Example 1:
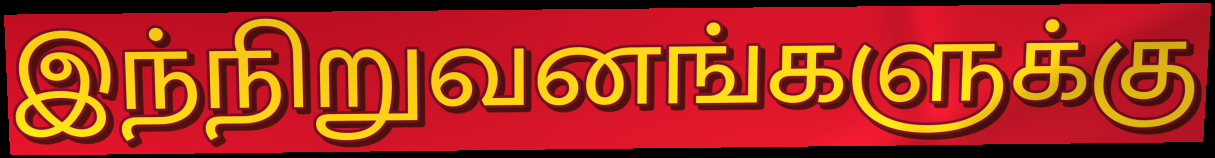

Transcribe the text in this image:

இந்நிறுவனங்களுக்கு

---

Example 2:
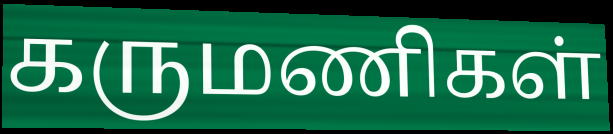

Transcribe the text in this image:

கருமணிகள்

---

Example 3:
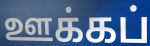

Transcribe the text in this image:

ஊக்கப்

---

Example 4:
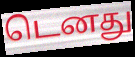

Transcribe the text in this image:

டெனது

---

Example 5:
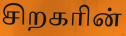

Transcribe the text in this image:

சிறகரின்